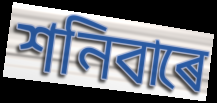
শনিবাৰে